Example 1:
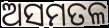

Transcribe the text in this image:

ଅସମତଳ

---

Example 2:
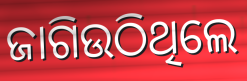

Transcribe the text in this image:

ଜାଗିଉଠିଥିଲେ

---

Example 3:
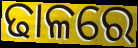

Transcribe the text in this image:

ଢାଳରେ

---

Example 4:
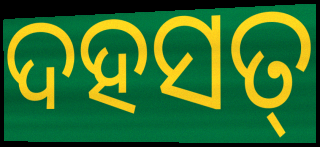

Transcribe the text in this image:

ଦହସତ୍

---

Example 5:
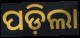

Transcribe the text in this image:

ପଡ଼ିଲା